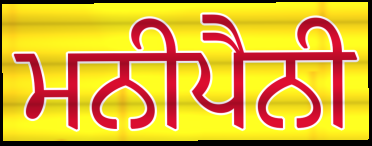
ਮਨੀਪੈਨੀ